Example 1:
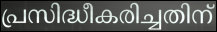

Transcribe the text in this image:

പ്രസിദ്ധീകരിച്ചതിന്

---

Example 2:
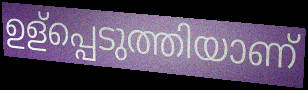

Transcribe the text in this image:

ഉള്പ്പെടുത്തിയാണ്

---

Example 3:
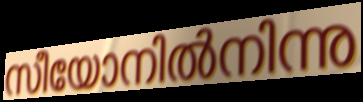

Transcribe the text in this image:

സീയോനിൽനിന്നു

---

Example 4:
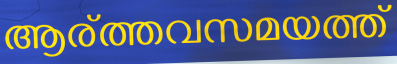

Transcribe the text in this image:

ആര്ത്തവസമയത്ത്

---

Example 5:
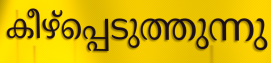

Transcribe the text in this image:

കീഴ്പ്പെടുത്തുന്നു